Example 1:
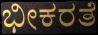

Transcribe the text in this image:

ಭೀಕರತೆ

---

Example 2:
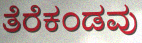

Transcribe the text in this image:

ತೆರೆಕಂಡವು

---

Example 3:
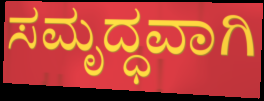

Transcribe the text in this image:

ಸಮೃದ್ಧವಾಗಿ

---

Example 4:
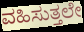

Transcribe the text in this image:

ವಹಿಸುತ್ತಲೇ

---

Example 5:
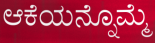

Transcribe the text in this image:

ಆಕೆಯನ್ನೊಮ್ಮೆ